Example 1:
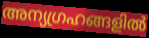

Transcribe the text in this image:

അന്യഗ്രഹങ്ങളിൽ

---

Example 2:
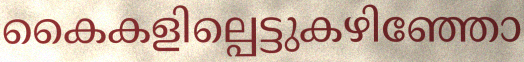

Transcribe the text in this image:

കൈകളില്പെട്ടുകഴിഞ്ഞോ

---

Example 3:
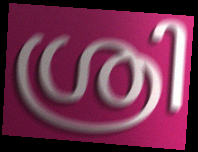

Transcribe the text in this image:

ശ്രി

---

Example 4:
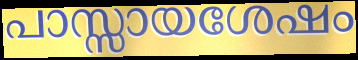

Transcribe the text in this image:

പാസ്സായശേഷം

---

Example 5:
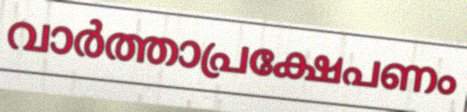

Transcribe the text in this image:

വാർത്താപ്രക്ഷേപണം